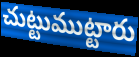
చుట్టుముట్టారు